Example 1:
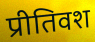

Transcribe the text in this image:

प्रीतिवश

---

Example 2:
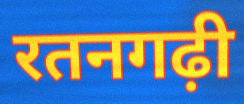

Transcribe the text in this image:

रतनगढ़ी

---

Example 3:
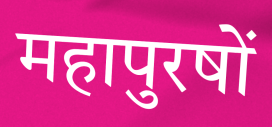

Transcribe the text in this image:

महापुरषों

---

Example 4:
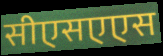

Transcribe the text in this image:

सीएसएएस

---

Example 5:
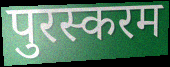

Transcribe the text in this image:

पुरस्करम